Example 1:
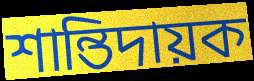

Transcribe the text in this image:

শান্তিদায়ক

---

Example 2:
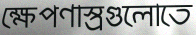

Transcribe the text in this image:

ক্ষেপণাস্ত্রগুলোতে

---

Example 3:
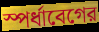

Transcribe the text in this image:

স্পর্ধাবেগের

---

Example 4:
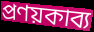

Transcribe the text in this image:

প্রণয়কাব্য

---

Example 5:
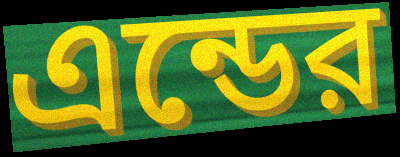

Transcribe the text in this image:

এন্ডের